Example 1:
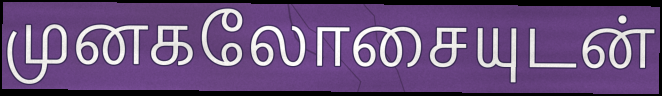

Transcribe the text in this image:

முனகலோசையுடன்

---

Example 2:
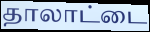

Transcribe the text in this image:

தாலாட்டை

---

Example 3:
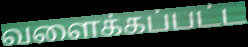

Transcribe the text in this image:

வளைக்கப்பட்ட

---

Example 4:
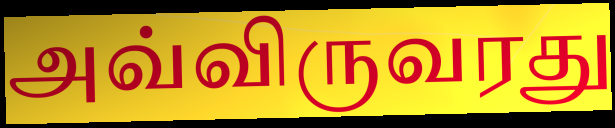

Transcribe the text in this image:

அவ்விருவரது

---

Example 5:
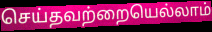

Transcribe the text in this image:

செய்தவற்றையெல்லாம்